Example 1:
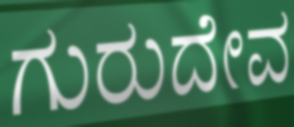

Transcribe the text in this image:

ಗುರುದೇವ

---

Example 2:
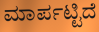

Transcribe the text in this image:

ಮಾರ್ಪಟ್ಟಿದೆ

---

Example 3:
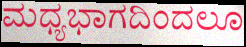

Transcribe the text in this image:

ಮಧ್ಯಭಾಗದಿಂದಲೂ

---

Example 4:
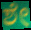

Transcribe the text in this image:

ಶೇ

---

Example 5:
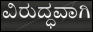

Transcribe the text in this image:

ವಿರುದ್ಧವಾಗಿ